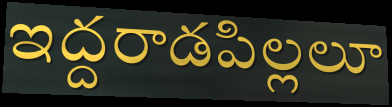
ఇద్దరాడపిల్లలూ